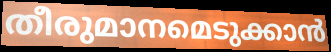
തീരുമാനമെടുക്കാൻ